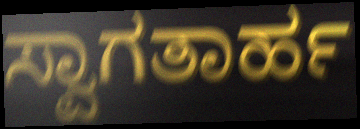
ಸ್ವಾಗತಾರ್ಹ